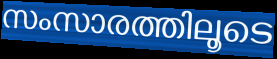
സംസാരത്തിലൂടെ